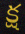
క్ష